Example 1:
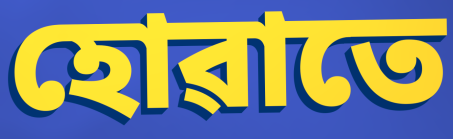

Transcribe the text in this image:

হোৱাতে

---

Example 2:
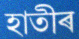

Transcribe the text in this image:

হাতীৰ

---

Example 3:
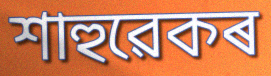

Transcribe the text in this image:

শাহুৱেকৰ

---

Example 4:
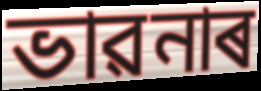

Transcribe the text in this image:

ভাৱনাৰ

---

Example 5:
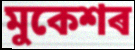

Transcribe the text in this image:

মুকেশৰ